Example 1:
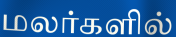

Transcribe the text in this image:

மலர்களில்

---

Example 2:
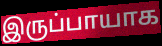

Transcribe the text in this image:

இருப்பாயாக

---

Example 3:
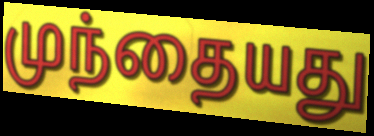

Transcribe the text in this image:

முந்தையது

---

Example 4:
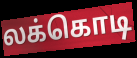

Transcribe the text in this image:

லக்கொடி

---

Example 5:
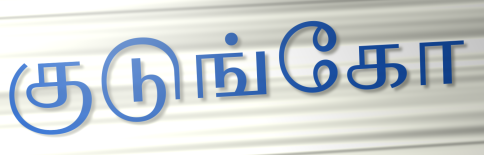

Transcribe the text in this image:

குடுங்கோ